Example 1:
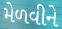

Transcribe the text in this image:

મેળવીને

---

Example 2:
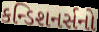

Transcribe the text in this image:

કન્ડિશનર્સનો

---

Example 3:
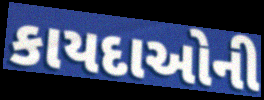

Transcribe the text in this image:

કાયદાઓની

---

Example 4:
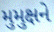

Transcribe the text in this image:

મુમુક્ષને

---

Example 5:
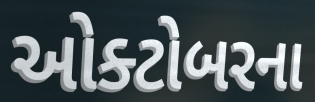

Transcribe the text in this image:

ઓક્ટોબરના